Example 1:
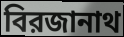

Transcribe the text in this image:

বিরজানাথ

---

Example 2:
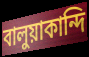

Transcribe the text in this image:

বালুয়াকান্দি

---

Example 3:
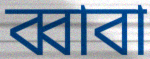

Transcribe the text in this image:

ব্বাবা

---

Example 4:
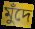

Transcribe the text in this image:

মুঁদে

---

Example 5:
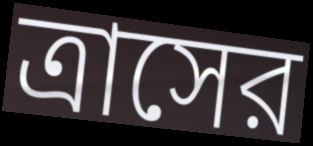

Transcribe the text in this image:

ত্রাসের